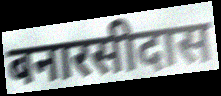
बनारसीदास